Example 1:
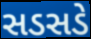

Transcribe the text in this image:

સડસડે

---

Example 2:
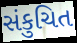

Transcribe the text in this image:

સંકુચિત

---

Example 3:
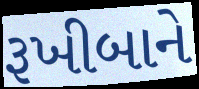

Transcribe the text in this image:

રૂખીબાને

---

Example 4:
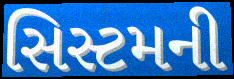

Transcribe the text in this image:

સિસ્ટમની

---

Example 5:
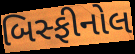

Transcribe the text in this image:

બિસ્ફીનોલ